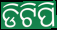
ଡିଟିପି